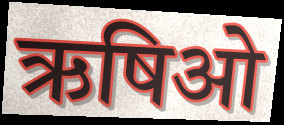
ऋषिओ